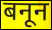
बनून